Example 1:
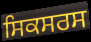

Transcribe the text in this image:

ਸਿਕਸਰਸ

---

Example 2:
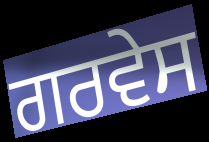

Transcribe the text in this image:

ਗਰਵੇਸ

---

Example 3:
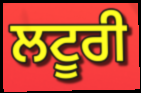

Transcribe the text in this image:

ਲਟੂਰੀ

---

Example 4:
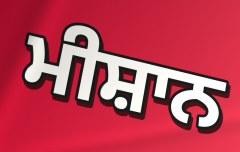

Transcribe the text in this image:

ਮੀਸ਼ਾਨ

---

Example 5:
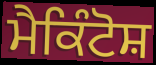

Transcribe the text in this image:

ਮੈਕਿੰਟੋਸ਼